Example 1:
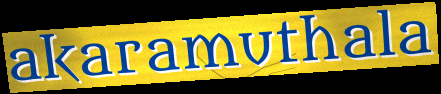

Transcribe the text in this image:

akaramuthala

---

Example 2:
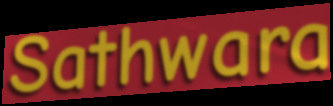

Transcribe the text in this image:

Sathwara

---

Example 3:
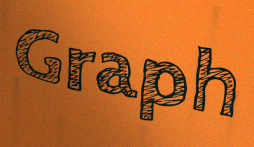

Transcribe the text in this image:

Graph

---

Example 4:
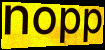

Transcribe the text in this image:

nopp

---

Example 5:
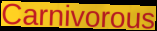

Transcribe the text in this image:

Carnivorous